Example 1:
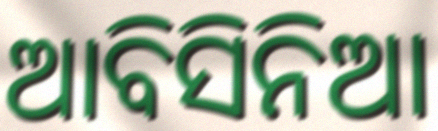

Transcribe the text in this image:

ଆବିସିନିଆ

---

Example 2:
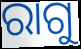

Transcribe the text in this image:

ରାଗୁ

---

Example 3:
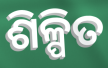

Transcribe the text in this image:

ଶିଳ୍ପିତ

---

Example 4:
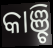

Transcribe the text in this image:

କାଞ୍ଚି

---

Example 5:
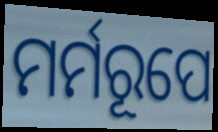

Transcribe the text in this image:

ମର୍ମରୂପେ